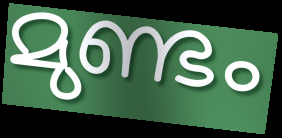
മുണ്ടം